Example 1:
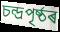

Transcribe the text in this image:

চন্দ্ৰপৃষ্ঠৰ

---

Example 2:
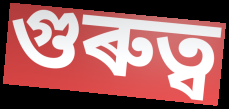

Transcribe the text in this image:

গুৰুত্ব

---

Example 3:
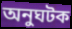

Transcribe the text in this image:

অনুঘটক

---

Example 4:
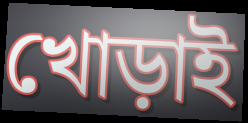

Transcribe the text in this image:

খোড়াই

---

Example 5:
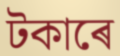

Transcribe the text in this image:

টকাৰে